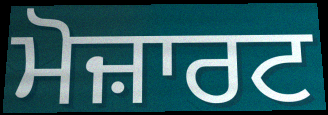
ਮੋਜ਼ਾਰਟ